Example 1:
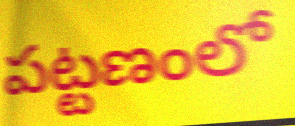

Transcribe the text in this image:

పట్టణంలో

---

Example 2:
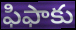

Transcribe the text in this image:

ఫిఫాకు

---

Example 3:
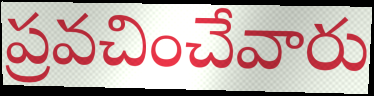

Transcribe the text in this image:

ప్రవచించేవారు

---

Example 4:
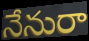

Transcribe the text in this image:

నేనురా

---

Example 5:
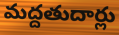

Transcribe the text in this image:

మద్దతుదార్లు